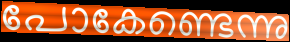
പോകേണ്ടെന്നു